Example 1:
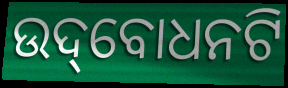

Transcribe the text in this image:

ଉଦ୍‌ବୋଧନଟି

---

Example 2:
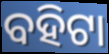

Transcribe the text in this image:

ବହିଟା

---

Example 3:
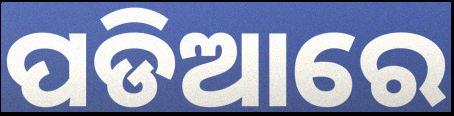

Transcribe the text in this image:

ପଡିଆରେ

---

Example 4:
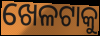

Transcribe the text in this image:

ଖେଳଟାକୁ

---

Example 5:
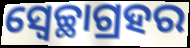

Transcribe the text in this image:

ସ୍ବେଚ୍ଛାଗ୍ରହର